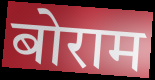
बोराम